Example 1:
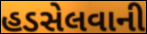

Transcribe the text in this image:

હડસેલવાની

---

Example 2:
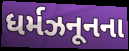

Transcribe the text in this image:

ધર્મઝનૂનના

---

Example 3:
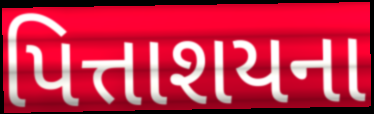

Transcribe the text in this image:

પિત્તાશયના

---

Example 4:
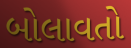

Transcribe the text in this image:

બોલાવતો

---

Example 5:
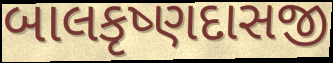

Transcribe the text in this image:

બાલકૃષ્ણદાસજી